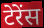
टेरेंस